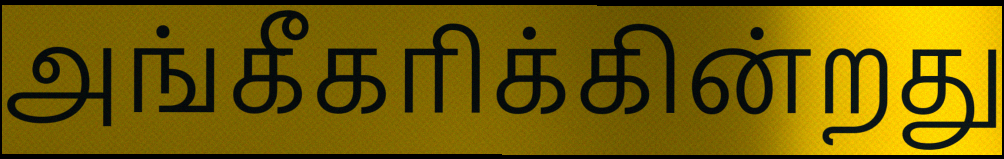
அங்கீகரிக்கின்றது